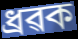
ধ্ৰৱক